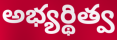
అభ్యర్థిత్వ